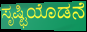
ಸೃಷ್ಟಿಯೊಡನೆ